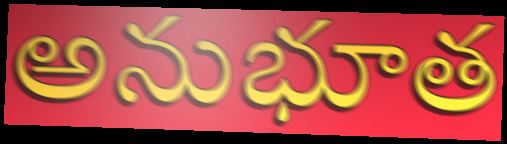
అనుభూత